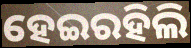
ହେଇରହିଲି